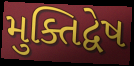
મુક્તિદ્વેષ